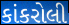
કાંકરોલી